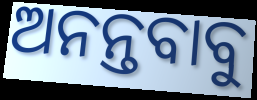
ଅନନ୍ତବାବୁ